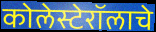
कोलेस्टेरॉलाचे